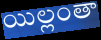
యిల్లంతా